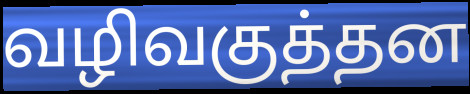
வழிவகுத்தன